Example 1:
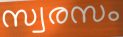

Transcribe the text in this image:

സ്വരസം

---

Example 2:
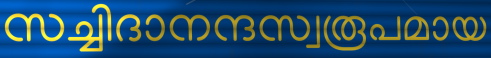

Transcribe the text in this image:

സച്ചിദാനന്ദസ്വരൂപമായ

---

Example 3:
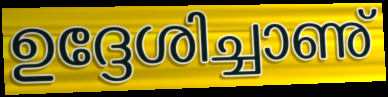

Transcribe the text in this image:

ഉദ്ദേശിച്ചാണു്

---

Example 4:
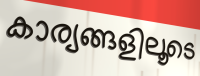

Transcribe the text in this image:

കാര്യങ്ങളിലൂടെ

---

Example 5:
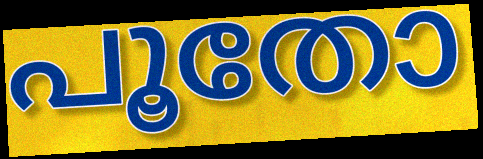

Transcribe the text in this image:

പൂതോ